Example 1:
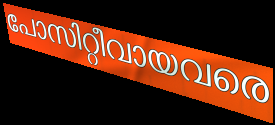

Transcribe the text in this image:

പോസിറ്റീവായവരെ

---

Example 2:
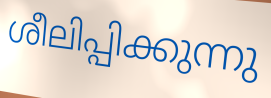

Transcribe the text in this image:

ശീലിപ്പിക്കുന്നു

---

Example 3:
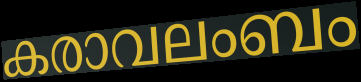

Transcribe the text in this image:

കരാവലംബം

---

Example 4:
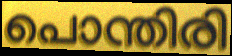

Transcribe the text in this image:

പൊന്തിരി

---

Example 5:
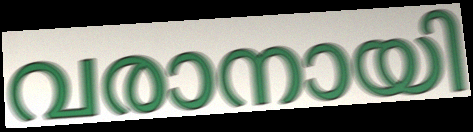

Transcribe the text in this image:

വരാനായി